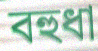
বহুধা